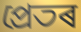
প্ৰেতৰ